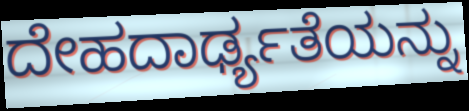
ದೇಹದಾರ್ಢ್ಯತೆಯನ್ನು